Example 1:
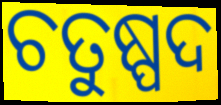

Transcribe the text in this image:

ଚତୁଷ୍ପଦ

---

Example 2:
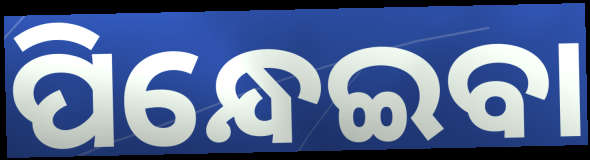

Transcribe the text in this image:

ପିନ୍ଧେଇବା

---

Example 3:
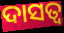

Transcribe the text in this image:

ଦାସତ୍ଵ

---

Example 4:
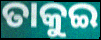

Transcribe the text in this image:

ତାକୁଇ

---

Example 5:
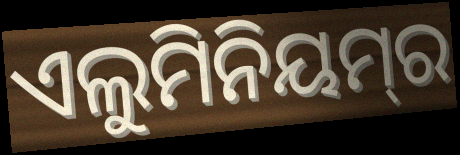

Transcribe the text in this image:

ଏଲୁମିନିୟମ୍‌ର